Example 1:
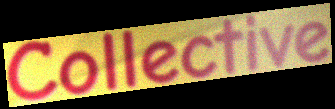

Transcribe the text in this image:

Collective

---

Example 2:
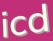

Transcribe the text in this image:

icd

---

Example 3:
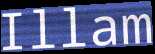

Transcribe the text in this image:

Illam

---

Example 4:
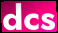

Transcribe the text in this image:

dcs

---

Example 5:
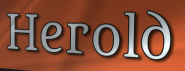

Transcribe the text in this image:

Herold